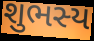
શુભસ્ય